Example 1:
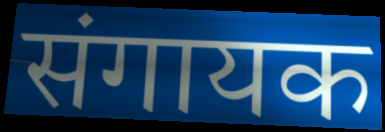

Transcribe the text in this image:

संगायक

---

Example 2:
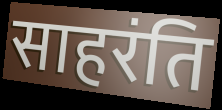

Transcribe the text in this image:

साहरंति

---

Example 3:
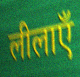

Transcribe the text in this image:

लीलाएँ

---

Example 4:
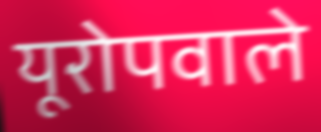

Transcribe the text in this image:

यूरोपवाले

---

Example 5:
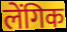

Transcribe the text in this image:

लेंगिक